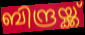
ബിന്ദ്രയ്ക്ക്